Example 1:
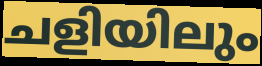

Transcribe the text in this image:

ചളിയിലും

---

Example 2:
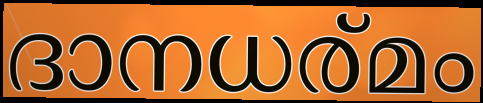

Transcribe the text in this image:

ദാനധര്മം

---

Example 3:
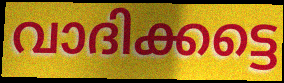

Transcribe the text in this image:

വാദിക്കട്ടെ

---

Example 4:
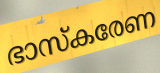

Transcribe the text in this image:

ഭാസ്കരേണ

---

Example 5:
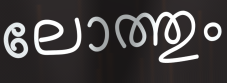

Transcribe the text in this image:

ലോത്തും